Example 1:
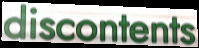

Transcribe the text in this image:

discontents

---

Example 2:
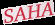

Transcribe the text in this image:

SAHA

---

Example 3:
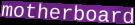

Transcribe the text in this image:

motherboard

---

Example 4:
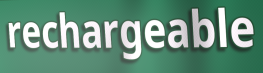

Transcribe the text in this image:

rechargeable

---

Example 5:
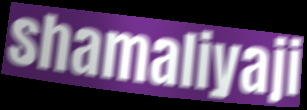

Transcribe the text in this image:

shamaliyaji